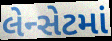
લેન્સેટમાં